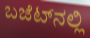
ಬಜೆಟ್‌ನಲ್ಲಿ